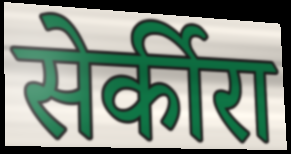
सेर्कीरा